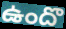
ఉందొ